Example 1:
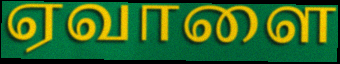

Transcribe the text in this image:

ஏவாளை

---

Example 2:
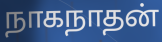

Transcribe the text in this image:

நாகநாதன்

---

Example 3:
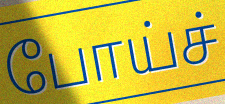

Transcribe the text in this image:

போய்ச்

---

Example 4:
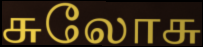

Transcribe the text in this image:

சுலோசு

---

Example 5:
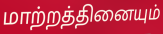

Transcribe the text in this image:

மாற்றத்தினையும்